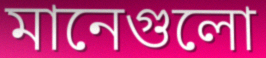
মানেগুলো